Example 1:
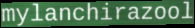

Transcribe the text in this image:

mylanchirazool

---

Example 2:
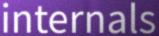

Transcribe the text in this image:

internals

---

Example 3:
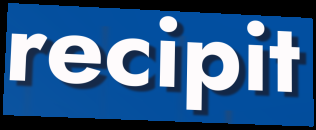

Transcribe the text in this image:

recipit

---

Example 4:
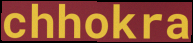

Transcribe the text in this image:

chhokra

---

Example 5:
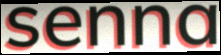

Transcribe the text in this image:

senna